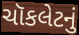
ચૉકલેટનું